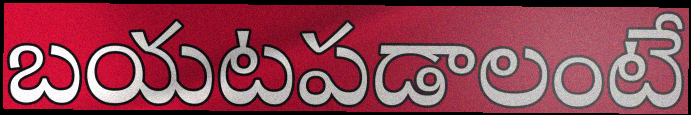
బయటపడాలంటే